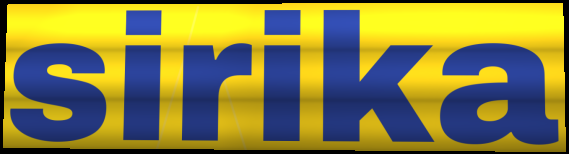
sirika